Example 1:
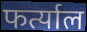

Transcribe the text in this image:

फर्त्याल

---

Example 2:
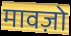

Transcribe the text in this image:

मावज़ो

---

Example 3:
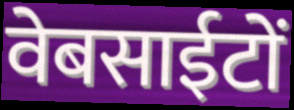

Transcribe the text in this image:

वेबसाईटों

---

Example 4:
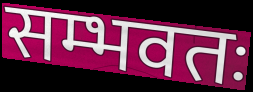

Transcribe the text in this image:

सम्भवतः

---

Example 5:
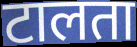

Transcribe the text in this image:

टालता